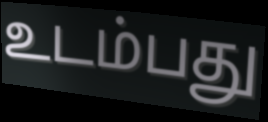
உடம்பது